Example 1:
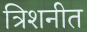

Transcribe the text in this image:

त्रिशनीत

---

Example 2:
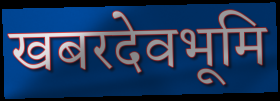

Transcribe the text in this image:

खबरदेवभूमि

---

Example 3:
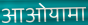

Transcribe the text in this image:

आओयामा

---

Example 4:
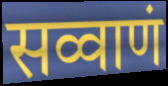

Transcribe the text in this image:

सव्वाणं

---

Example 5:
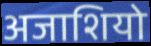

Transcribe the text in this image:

अजाशियो